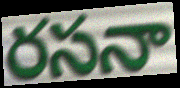
రసనా